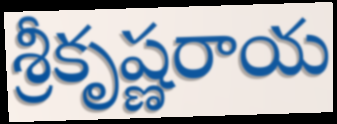
శ్రీకృష్ణరాయ